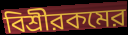
বিশ্রীরকমের